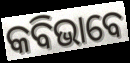
କବିଭାବେ